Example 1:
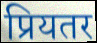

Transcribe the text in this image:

प्रियतर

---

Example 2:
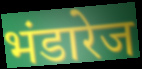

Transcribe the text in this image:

भंडारेज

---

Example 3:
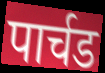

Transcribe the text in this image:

पार्चड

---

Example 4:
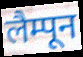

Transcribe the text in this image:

लैम्पून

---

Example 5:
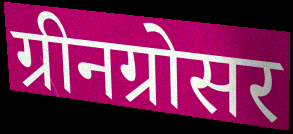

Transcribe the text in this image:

ग्रीनग्रोसर